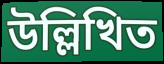
উল্লিখিত